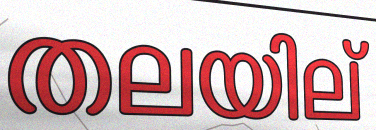
തലയില്